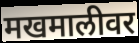
मखमालीवर